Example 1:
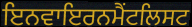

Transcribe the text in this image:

ਇਨਵਾਇਰਨਮੈਂਟਲਿਸਟ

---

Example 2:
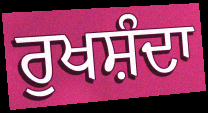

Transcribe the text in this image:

ਰੁਖਸ਼ੰਦਾ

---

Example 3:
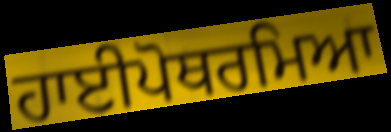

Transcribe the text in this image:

ਹਾਈਪੋਥਰਮਿਆ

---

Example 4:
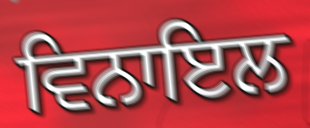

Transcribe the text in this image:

ਵਿਨਾਇਲ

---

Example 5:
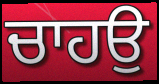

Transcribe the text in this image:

ਚਾਹਉ